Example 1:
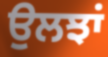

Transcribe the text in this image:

ਉਲਝਾਂ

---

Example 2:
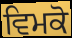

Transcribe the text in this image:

ਵਿਮਕੋ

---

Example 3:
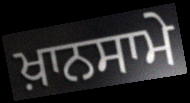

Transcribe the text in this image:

ਖ਼ਾਨਸਾਮੇ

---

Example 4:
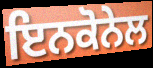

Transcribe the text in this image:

ਇਨਕੋਨੇਲ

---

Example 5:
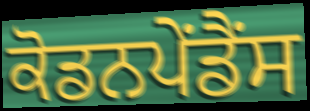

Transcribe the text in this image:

ਕੋਡਨਪੇਂਡੈਂਸ